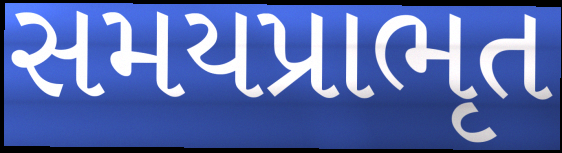
સમયપ્રાભૃત